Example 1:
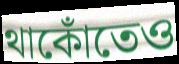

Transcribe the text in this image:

থাকোঁতেও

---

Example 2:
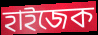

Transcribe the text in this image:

হাইজেক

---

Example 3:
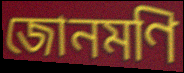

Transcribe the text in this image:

জোনমণি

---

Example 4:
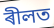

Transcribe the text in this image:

ৰীলত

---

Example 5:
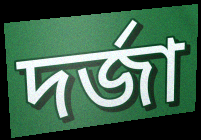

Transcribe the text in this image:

দৰ্জা